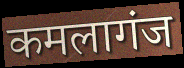
कमलागंज